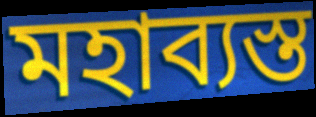
মহাব্যস্ত